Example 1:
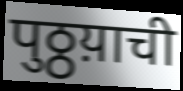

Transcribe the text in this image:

पुठ्ठय़ाची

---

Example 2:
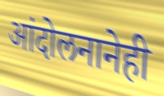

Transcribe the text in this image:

आंदोलनानेही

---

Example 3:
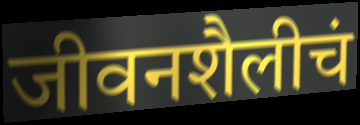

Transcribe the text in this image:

जीवनशैलीचं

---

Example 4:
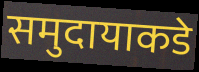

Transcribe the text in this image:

समुदायाकडे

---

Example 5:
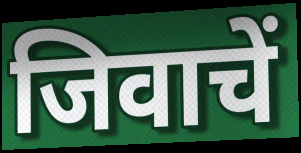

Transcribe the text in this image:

जिवाचें